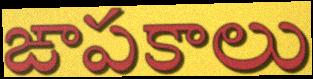
ఙాపకాలు